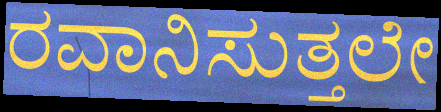
ರವಾನಿಸುತ್ತಲೇ